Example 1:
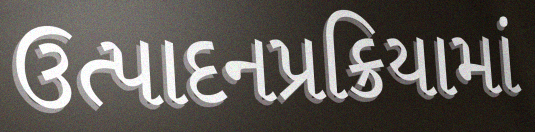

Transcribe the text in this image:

ઉત્પાદનપ્રક્રિયામાં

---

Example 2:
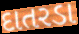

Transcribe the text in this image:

દાતરડા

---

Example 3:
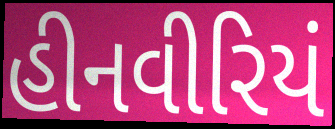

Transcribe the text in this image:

હીનવીરિયં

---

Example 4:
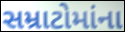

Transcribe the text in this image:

સમ્રાટોમાંના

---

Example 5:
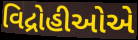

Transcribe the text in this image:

વિદ્રોહીઓએ